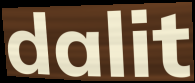
dalit